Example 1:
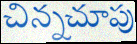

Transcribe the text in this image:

చిన్నచూపు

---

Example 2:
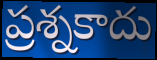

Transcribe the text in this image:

ప్రశ్నకాదు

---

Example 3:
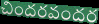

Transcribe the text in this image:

చిందరవందర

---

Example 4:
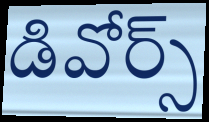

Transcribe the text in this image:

డివోర్స్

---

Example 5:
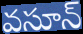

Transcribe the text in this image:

వసూన్